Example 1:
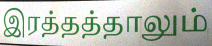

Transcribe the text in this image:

இரத்தத்தாலும்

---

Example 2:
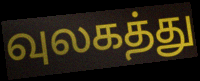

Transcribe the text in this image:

வுலகத்து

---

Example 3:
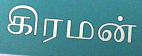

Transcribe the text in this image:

கிரமன்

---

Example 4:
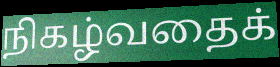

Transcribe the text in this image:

நிகழ்வதைக்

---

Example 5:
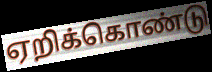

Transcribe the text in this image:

ஏறிக்கொண்டு